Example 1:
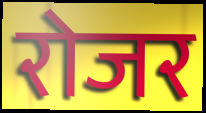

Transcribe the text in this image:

रोजर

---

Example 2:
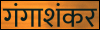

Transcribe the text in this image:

गंगाशंकर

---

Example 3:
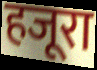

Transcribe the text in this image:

हजूरा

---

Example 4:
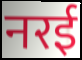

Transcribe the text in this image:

नरई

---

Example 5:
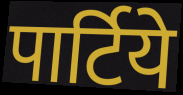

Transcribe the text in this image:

पार्टिये